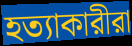
হত্যাকারীরা